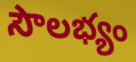
సౌలభ్యం